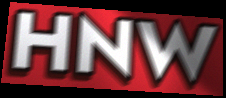
HNW